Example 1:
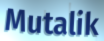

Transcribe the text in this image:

Mutalik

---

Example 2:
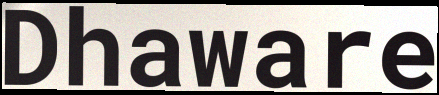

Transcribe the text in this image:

Dhaware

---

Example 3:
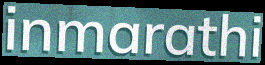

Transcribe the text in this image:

inmarathi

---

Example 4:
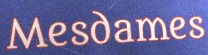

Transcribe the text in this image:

Mesdames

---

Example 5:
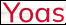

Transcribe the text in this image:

Yoas